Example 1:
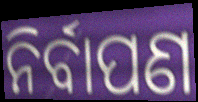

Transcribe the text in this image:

ନିର୍ବାପଣ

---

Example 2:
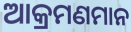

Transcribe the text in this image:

ଆକ୍ରମଣମାନ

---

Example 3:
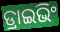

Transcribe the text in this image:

ଡ୍ରାଇଭିଂ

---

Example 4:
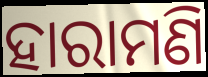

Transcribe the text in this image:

ହାରାମଣି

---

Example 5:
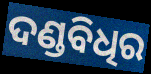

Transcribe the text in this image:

ଦଣ୍ଡବିଧିର